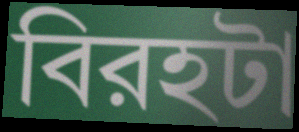
বিরহটা